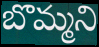
బొమ్మని